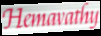
Hemavathy